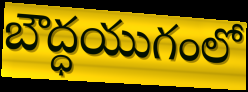
బౌద్ధయుగంలో